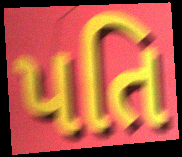
પતિ